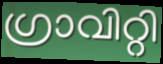
ഗ്രാവിറ്റി